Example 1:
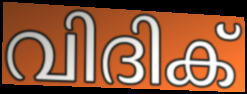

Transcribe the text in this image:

വിദിക്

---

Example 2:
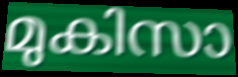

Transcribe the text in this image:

മുകിസാ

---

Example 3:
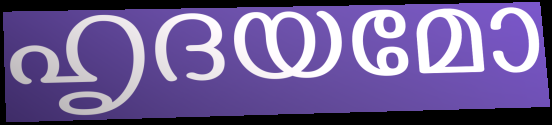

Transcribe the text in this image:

ഹൃദയമോ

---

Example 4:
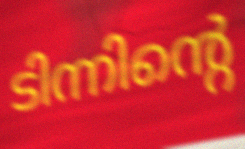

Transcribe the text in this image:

ടിന്നിന്റെ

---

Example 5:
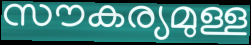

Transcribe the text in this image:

സൗകര്യമുള്ള